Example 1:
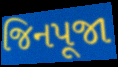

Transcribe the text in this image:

જિનપૂજા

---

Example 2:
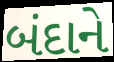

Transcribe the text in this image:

બંદાને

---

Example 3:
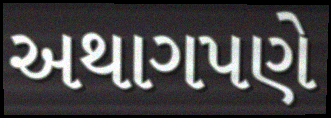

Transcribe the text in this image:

અથાગપણે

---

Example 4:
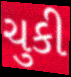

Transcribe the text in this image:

ચુકી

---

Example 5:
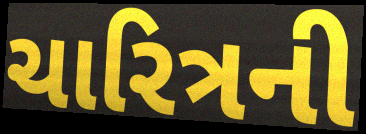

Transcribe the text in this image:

ચારિત્રની